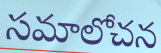
సమాలోచన